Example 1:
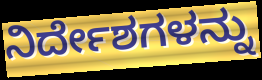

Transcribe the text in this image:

ನಿರ್ದೇಶಗಳನ್ನು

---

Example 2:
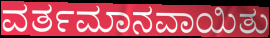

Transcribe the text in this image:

ವರ್ತಮಾನವಾಯಿತು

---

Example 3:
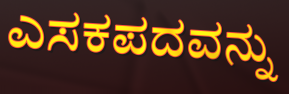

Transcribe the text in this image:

ಎಸಕಪದವನ್ನು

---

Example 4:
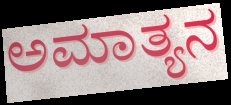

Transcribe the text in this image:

ಅಮಾತ್ಯನ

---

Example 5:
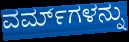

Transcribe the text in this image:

ವರ್ಮ್‌ಗಳನ್ನು